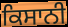
ਕਿਸਾਨੀ